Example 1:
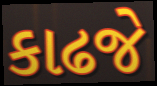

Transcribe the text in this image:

કાઢજે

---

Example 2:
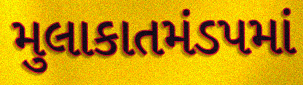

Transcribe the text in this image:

મુલાકાતમંડપમાં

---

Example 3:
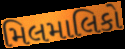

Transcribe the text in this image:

મિલમાલિકો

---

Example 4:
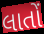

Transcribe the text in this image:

લાતોં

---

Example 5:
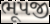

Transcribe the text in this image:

ભૂપજી